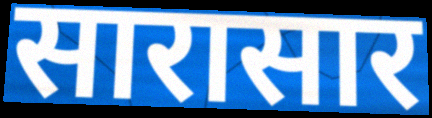
सारासार